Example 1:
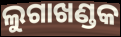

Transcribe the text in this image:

ଲୁଗାଖଣ୍ଡକ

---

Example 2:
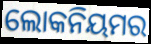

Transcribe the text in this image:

ଲୋକନିୟମର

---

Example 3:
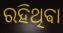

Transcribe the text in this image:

ରହିଥିଵା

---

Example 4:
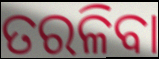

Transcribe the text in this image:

ତରଳିବା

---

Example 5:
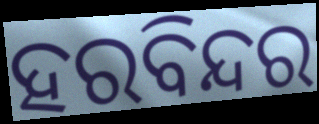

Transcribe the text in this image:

ହରବିନ୍ଦର